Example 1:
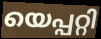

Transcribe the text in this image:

യെപ്പറ്റി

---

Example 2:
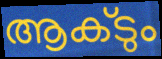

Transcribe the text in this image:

ആക്ടും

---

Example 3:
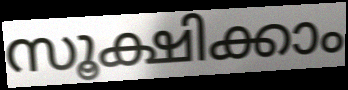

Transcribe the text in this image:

സൂക്ഷിക്കാം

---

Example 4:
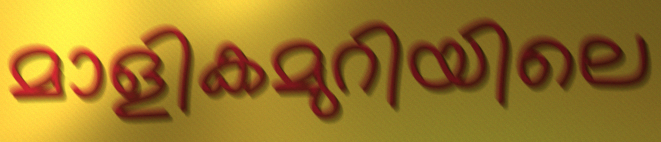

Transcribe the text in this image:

മാളികമുറിയിലെ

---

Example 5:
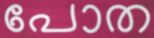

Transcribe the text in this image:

പോത